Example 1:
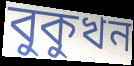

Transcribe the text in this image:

বুকুখন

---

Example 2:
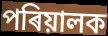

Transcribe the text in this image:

পৰিয়ালক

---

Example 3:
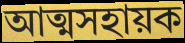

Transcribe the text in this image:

আত্মসহায়ক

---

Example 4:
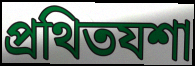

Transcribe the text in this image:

প্ৰথিতযশা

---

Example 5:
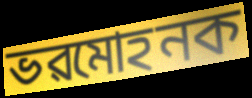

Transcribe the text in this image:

ভৱমোহনক